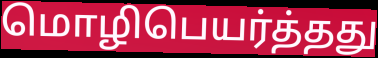
மொழிபெயர்த்தது